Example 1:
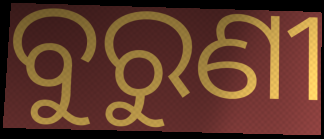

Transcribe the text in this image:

ବୁରୁଣୀ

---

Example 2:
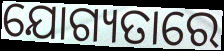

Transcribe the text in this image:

ଯୋଗ୍ୟତାରେ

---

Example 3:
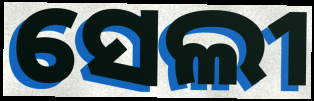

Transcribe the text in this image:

ସେଲୀ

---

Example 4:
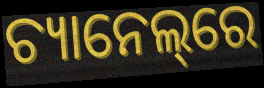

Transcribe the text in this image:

ଚ୍ୟାନେଲ୍‌ରେ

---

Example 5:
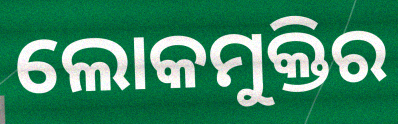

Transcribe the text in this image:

ଲୋକମୁକ୍ତିର